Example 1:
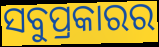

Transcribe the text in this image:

ସବୁପ୍ରକାରର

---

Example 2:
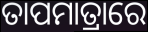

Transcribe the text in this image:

ତାପମାତ୍ରାରେ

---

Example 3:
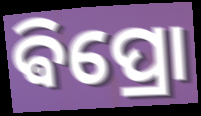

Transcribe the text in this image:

ଵିପ୍ରୋ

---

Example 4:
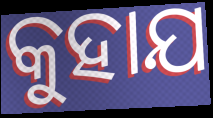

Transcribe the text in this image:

କୁହାଯ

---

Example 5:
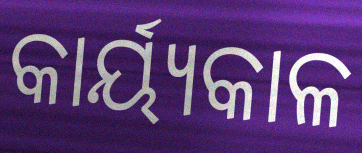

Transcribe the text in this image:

କାର୍ୟ୍ୟକାଳ